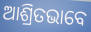
ଆଶ୍ରିତଭାବେ